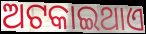
ଅଟକାଇଥାଏ